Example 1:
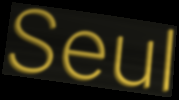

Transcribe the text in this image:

Seul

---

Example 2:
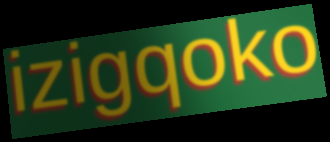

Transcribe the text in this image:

izigqoko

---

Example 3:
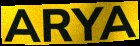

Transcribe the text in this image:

ARYA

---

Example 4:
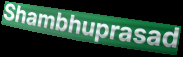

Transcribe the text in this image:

Shambhuprasad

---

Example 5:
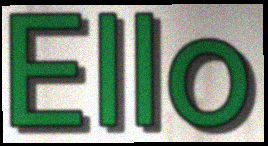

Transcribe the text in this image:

Ello